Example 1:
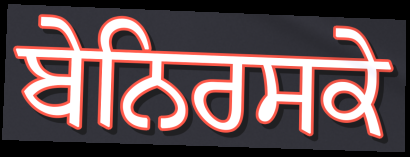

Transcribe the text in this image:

ਬੇਨਿਰਸਕੇ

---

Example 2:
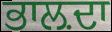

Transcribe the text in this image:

ਭਾਲ਼ਦਾ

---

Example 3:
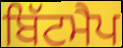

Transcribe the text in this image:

ਬਿੱਟਮੈਪ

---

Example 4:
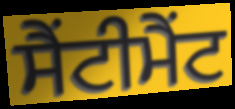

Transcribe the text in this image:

ਸੈਂਟੀਮੈਂਟ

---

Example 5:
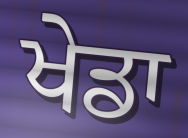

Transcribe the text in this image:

ਖੇਡਾ